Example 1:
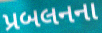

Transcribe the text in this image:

પ્રબલનના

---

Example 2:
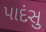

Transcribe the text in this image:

પાદંસુ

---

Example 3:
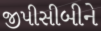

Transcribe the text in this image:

જીપીસીબીને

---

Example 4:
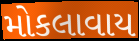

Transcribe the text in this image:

મોકલાવાય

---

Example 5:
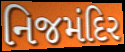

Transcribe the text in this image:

નિજમંદિર